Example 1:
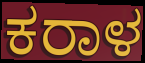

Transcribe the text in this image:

ಕರಾಳ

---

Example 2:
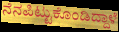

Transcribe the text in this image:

ನೆನಪಿಟ್ಟುಕೊಂಡಿದ್ದಾಳೆ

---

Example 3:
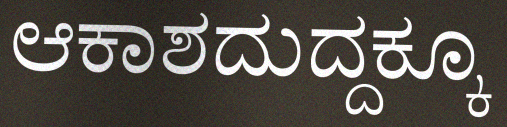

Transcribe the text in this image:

ಆಕಾಶದುದ್ದಕ್ಕೂ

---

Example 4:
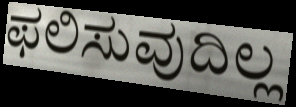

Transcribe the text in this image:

ಫಲಿಸುವುದಿಲ್ಲ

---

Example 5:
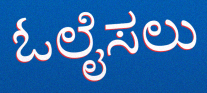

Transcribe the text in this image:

ಓಲೈಸಲು